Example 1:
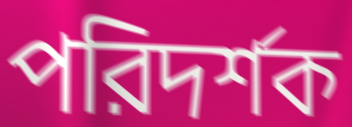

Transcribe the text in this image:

পরিদর্শক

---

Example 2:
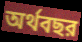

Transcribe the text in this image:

অর্থবছর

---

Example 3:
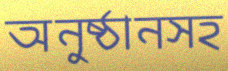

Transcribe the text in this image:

অনুষ্ঠানসহ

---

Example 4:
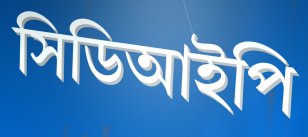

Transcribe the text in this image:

সিডিআইপি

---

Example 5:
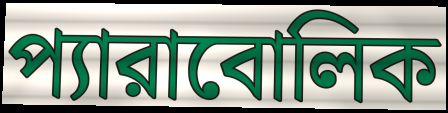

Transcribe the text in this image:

প্যারাবোলিক